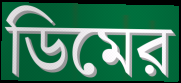
ডিমের